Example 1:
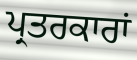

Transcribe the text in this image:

ਪ੍ਰਤਰਕਾਰਾਂ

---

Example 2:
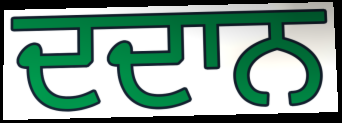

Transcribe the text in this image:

ਦਦਾਨ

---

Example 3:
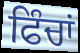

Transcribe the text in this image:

ਫਿੰਚਾਂ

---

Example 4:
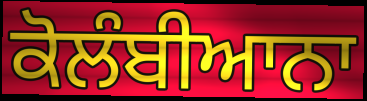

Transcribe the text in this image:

ਕੋਲੰਬੀਆਨਾ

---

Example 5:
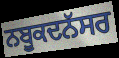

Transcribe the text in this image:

ਨਬੂਕਦਨੱਸਰ